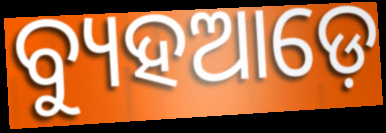
ବ୍ୟୁହଆଡ଼େ